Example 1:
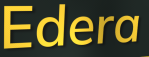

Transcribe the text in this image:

Edera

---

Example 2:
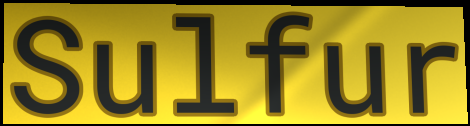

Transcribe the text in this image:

Sulfur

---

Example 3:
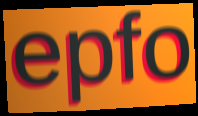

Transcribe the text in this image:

epfo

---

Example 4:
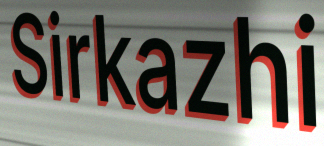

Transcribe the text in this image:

Sirkazhi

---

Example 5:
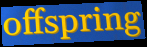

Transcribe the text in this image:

offspring